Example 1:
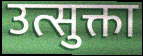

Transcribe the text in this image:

उत्सुक्ता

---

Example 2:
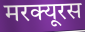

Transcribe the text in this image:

मरक्यूरस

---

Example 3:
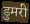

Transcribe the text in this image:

डुमरी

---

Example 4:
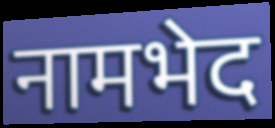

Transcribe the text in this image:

नामभेद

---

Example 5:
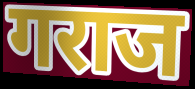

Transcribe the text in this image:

गराज